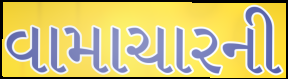
વામાચારની